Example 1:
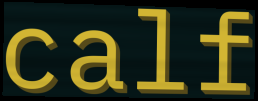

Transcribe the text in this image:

calf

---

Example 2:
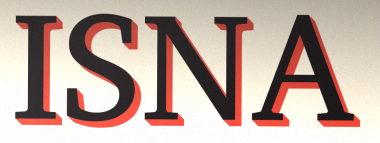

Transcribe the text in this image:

ISNA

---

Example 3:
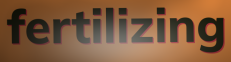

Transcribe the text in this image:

fertilizing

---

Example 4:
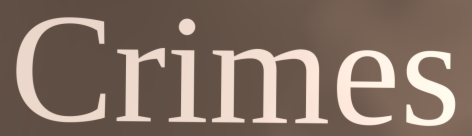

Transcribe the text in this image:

Crimes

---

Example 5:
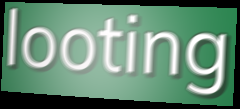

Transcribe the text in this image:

looting